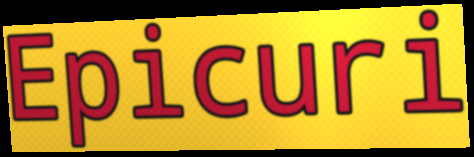
Epicuri